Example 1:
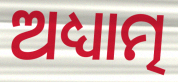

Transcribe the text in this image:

ଅଧ୍ୟାତ୍ମ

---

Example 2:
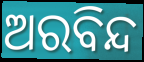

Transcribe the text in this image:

ଅରବିନ୍ଦ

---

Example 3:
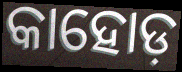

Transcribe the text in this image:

କାହୋଡ଼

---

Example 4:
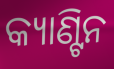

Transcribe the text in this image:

କ୍ୟାଣ୍ଟିନ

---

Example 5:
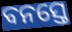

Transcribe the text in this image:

ବନସ୍ତେ